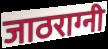
जाठराग्नी